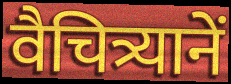
वैचित्र्यानें